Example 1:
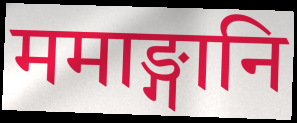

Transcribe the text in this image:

ममाङ्गानि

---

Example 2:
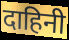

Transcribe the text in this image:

दाहिनी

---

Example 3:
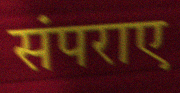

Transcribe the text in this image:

संपराए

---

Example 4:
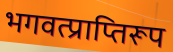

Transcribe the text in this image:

भगवत्प्राप्तिरूप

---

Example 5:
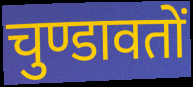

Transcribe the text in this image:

चुण्डावतों